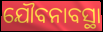
ଯୌବନାବସ୍ଥା